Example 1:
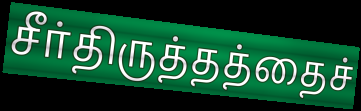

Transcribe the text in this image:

சீர்திருத்தத்தைச்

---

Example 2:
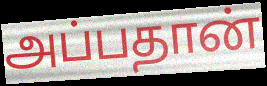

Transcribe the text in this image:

அப்பதான்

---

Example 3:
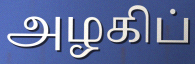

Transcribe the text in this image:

அழகிப்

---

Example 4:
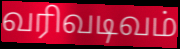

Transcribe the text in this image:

வரிவடிவம்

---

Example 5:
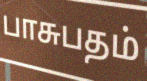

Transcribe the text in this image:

பாசுபதம்